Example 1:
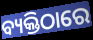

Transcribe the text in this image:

ବ୍ୟକ୍ତିଠାରେ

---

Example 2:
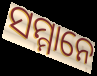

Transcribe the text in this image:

ସମ୍ମାନେ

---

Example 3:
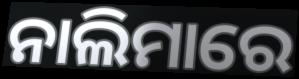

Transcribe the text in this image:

ନାଲିମାରେ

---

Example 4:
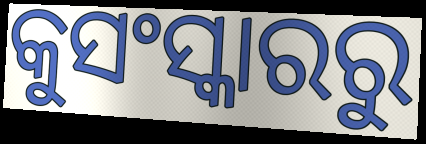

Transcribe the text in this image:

କୁସଂସ୍କାରରୁ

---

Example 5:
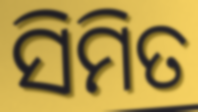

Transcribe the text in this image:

ସିମିତ